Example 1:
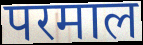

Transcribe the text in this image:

परमाल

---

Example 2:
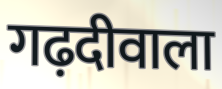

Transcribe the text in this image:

गढ़दीवाला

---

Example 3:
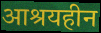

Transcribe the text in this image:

आश्रयहीन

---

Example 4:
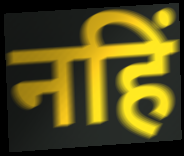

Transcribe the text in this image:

नहिं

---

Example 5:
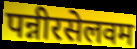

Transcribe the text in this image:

पन्नीरसेलवम